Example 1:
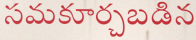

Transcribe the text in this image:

సమకూర్చబడిన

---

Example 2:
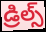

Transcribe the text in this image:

డ్రిల్స్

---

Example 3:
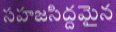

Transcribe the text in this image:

సహజసిద్దమైన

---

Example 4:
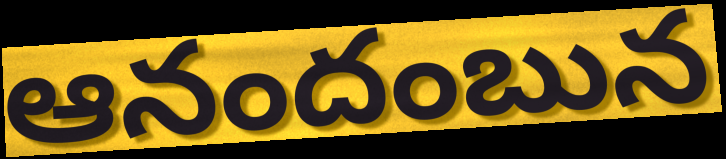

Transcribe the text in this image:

ఆనందంబున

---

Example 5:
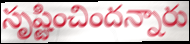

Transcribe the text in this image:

సృష్టించిందన్నారు